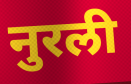
नुरली